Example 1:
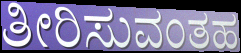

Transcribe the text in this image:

ತೀರಿಸುವಂತಹ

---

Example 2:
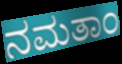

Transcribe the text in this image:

ನಮತಾಂ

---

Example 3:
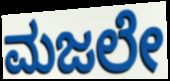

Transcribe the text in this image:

ಮಜಲೇ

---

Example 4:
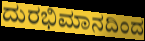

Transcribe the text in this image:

ದುರಭಿಮಾನದಿಂದ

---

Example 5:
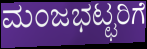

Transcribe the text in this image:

ಮಂಜಭಟ್ಟರಿಗೆ